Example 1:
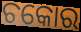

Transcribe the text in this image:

ଚକୋର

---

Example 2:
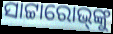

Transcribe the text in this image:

ସାଟ୍ଟାରୋଭ୍‌ଙ୍କୁ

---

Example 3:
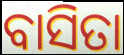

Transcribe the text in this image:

ବାସିତା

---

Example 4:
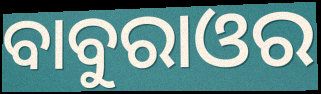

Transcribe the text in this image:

ବାବୁରାଓର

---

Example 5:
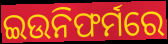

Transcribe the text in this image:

ଇଉନିଫର୍ମରେ